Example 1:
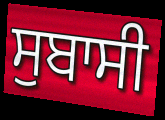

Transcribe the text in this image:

ਸੁਬਾਸੀ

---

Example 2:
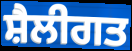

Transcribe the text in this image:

ਸ਼ੈਲੀਗਤ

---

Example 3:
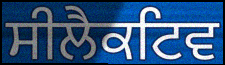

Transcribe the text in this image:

ਸੀਲੈਕਟਿਵ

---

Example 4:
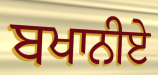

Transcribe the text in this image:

ਬਖਾਨੀਏ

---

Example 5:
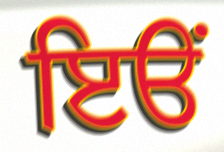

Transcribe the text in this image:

ਇੳਂ